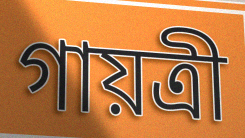
গায়ত্রী